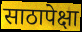
साठापेक्षा